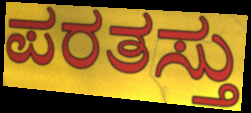
ಪರತಸ್ತು